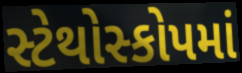
સ્ટેથોસ્કોપમાં